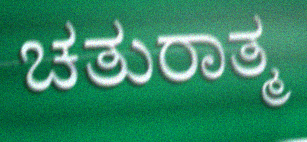
ಚತುರಾತ್ಮ